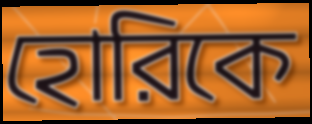
হোরিকে